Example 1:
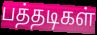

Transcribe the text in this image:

பத்தடிகள்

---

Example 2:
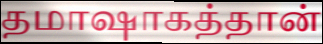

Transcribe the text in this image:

தமாஷாகத்தான்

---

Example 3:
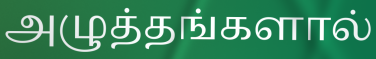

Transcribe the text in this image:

அழுத்தங்களால்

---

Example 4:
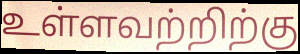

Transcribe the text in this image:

உள்ளவற்றிற்கு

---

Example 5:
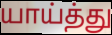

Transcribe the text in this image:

யாய்த்து